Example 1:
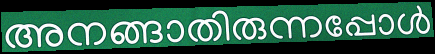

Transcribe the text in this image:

അനങ്ങാതിരുന്നപ്പോൾ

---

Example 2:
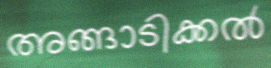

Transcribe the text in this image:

അങ്ങാടിക്കൽ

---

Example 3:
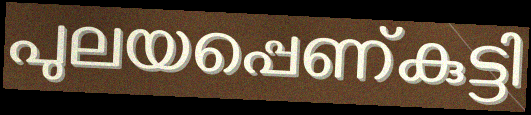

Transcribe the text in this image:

പുലയപ്പെണ്കുട്ടി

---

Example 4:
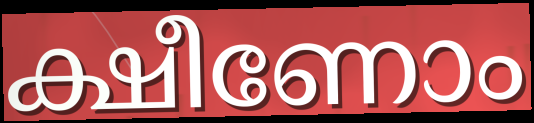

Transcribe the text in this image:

ക്ഷീണോം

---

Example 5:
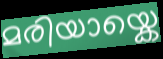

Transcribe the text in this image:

മരിയായ്കെ